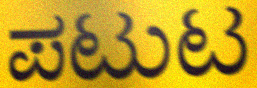
ಪಟುಟ